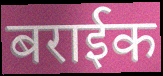
बराईक